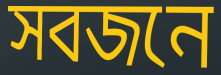
সবজনে